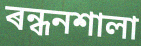
ৰন্ধনশালা